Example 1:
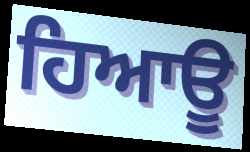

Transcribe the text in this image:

ਹਿਆਊ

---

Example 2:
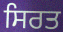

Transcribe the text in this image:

ਸਿਰਤ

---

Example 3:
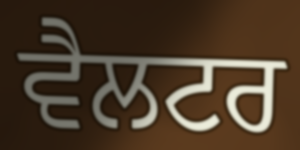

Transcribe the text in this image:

ਵੈਲਟਰ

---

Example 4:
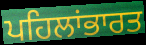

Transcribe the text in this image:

ਪਹਿਲਾਂਭਾਰਤ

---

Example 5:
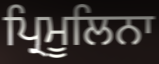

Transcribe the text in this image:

ਪ੍ਰਿਮੂਲਿਨਾ